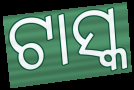
ଟାସ୍କ